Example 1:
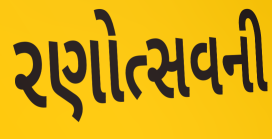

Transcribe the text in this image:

રણોત્સવની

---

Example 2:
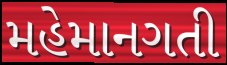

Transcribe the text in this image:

મહેમાનગતી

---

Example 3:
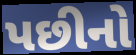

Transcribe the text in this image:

પછીનો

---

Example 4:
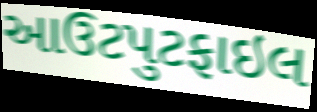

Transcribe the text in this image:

આઉટપુટફાઇલ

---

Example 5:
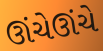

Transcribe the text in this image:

ઊંચેઊંચે